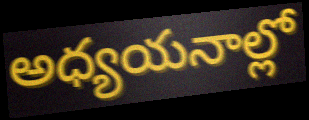
అధ్యయనాల్లో